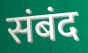
संबंद